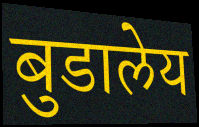
बुडालेय